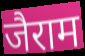
जैराम